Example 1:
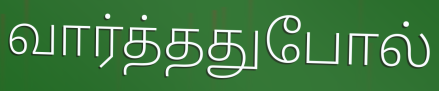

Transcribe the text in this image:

வார்த்ததுபோல்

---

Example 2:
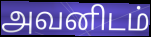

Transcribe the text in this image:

அவனிடம்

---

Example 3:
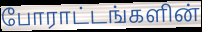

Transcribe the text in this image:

போராட்டங்களின்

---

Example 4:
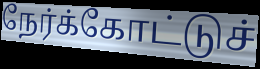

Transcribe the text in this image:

நேர்க்கோட்டுச்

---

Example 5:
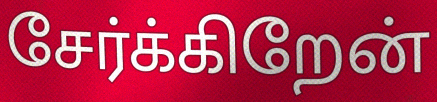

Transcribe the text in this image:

சேர்க்கிறேன்